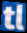
tl